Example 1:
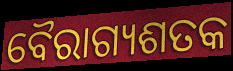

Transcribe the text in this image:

ବୈରାଗ୍ୟଶତକ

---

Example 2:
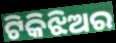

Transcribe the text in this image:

ଟିକିଝିଅର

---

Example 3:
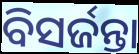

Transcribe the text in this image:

ବିସର୍ଜନ୍ତା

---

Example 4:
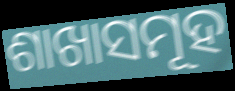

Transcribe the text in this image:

ଶାଖାସମୂହ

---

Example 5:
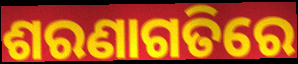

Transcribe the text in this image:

ଶରଣାଗତିରେ